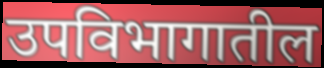
उपविभागातील